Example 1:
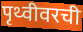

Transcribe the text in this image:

पृथ्वीवरची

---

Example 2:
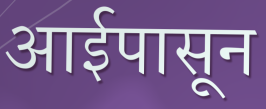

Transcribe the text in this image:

आईपासून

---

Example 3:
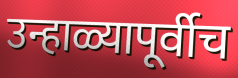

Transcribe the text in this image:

उन्हाळ्यापूर्वीच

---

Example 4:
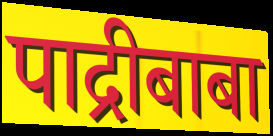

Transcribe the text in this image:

पाद्रीबाबा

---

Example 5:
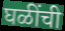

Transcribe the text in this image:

घळींची